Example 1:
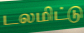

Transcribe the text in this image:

டலமிட்டு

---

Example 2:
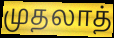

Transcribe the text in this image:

முதலாத்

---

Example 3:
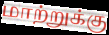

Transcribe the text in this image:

மாற்றுக்கு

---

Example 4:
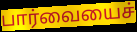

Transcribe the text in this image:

பார்வையைச்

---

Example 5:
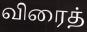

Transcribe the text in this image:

விரைத்